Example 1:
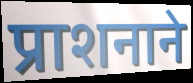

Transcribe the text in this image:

प्राशनाने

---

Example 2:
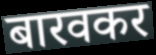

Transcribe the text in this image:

बारवकर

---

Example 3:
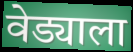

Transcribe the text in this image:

वेड्याला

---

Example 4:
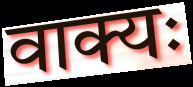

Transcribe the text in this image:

वाक्यः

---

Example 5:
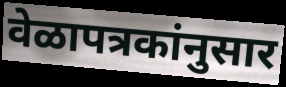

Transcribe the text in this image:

वेळापत्रकांनुसार